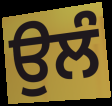
ਉਲੰ